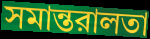
সমান্তরালতা